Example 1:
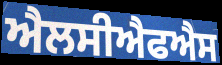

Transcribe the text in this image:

ਐਲਸੀਐਫਐਸ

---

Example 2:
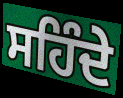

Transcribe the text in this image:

ਸਹਿੰਦੇ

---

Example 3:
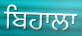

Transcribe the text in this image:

ਬਿਹਾਲਾ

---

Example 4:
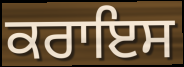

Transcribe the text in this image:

ਕਰਾਇਸ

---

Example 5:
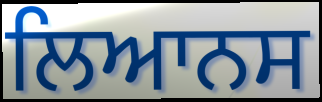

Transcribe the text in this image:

ਲਿਆਨਸ